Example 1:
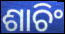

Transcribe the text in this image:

ଶାଚିଂ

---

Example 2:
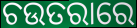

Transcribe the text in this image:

ଚଉତରାରେ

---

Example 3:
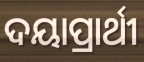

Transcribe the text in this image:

ଦୟାପ୍ରାର୍ଥୀ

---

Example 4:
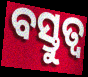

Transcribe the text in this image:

ବସ୍ତୁତ୍ବ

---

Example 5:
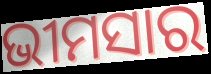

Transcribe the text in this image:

ଭୀମସାର